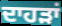
ਦਾਹੜਾਂ